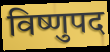
विष्‍णुपद